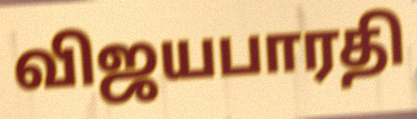
விஜயபாரதி